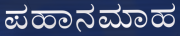
ಪಹಾನಮಾಹ